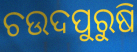
ଚଉଦପୁରୁଷି